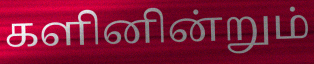
களினின்றும்